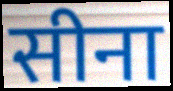
सीना